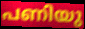
പണിയു